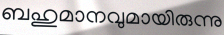
ബഹുമാനവുമായിരുന്നു